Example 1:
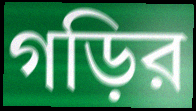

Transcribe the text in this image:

গড়ির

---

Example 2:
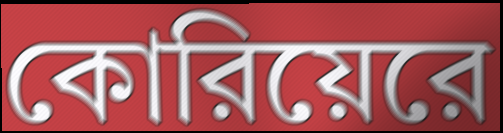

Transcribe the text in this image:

কোরিয়েরে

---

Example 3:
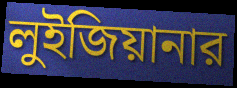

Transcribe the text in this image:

লুইজিয়ানার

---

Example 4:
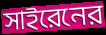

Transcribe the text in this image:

সাইরেনের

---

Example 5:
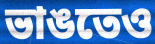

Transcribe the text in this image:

ভাঙতেও